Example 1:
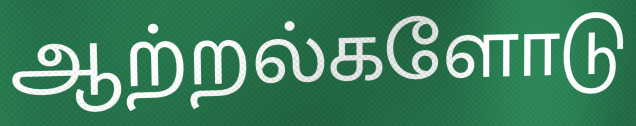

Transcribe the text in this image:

ஆற்றல்களோடு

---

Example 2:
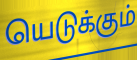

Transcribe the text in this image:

யெடுக்கும்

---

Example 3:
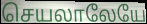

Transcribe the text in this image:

செயலாலேயே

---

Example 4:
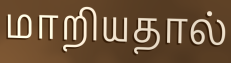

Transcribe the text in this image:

மாறியதால்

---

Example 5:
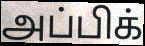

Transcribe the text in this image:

அப்பிக்